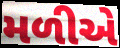
મળીએ